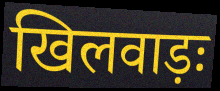
खिलवाड़ः